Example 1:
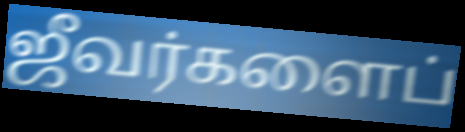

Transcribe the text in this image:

ஜீவர்களைப்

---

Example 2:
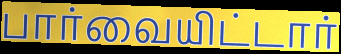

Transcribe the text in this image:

பார்வையிட்டார்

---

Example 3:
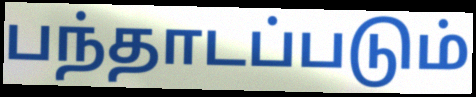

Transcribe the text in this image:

பந்தாடப்படும்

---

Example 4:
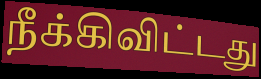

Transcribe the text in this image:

நீக்கிவிட்டது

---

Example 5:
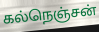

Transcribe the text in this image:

கல்நெஞ்சன்